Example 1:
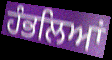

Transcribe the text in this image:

ਹੰਭਲਿਆਂ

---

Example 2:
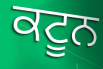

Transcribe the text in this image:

ਕਟੂਨ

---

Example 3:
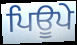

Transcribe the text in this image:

ਪਿਊਪੇ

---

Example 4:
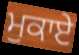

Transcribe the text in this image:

ਮੁਕਾਏ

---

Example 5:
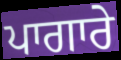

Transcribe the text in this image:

ਪਾਗਾਰੇ